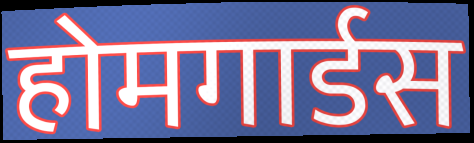
होमगार्डस